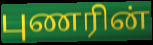
புணரின்